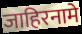
जाहिरनामे